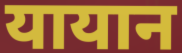
यायान